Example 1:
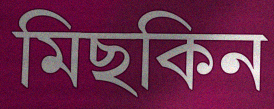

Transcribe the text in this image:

মিছকিন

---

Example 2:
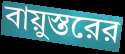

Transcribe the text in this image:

বায়ুস্তরের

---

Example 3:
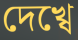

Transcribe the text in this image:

দেখ্বে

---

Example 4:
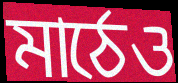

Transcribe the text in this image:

মাঠেও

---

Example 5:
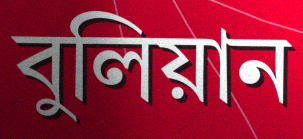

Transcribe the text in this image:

বুলিয়ান